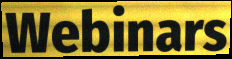
Webinars